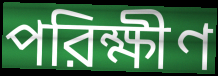
পরিক্ষীণ